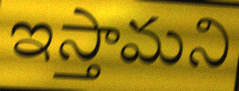
ఇస్తామని